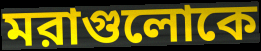
মরাগুলোকে